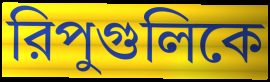
রিপুগুলিকে